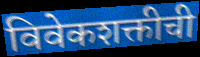
विवेकशक्तीची